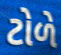
ટોળે